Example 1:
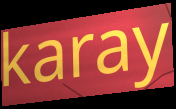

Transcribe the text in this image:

karay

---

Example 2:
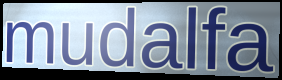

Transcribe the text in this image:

mudalfa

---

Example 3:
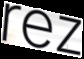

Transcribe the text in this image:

rez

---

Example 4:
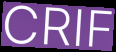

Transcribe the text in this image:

CRIF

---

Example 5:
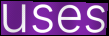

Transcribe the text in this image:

uses